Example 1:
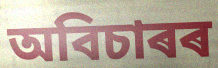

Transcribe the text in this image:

অবিচাৰৰ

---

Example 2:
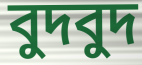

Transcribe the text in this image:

বুদবুদ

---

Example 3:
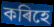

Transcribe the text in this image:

কৰিহে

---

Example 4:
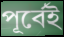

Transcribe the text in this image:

পূৰ্বেই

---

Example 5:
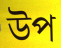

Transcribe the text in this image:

উপ